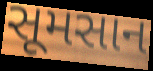
સૂમસાન